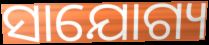
ସାଯୋଗ୍ୟ